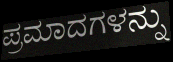
ಪ್ರಮಾದಗಳನ್ನು